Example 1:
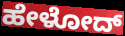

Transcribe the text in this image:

ಹೇಳೋದ್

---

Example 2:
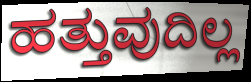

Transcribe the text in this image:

ಹತ್ತುವುದಿಲ್ಲ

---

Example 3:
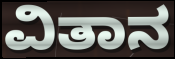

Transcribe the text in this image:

ವಿತಾನ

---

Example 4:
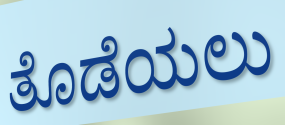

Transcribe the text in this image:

ತೊಡೆಯಲು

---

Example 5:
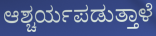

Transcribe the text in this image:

ಆಶ್ಚರ್ಯಪಡುತ್ತಾಳೆ